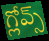
గ్లోవ్స్